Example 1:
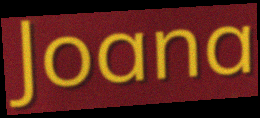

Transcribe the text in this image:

Joana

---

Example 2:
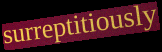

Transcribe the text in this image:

surreptitiously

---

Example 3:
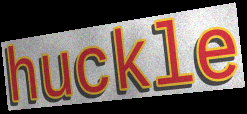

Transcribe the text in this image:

huckle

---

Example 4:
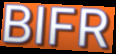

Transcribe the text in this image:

BIFR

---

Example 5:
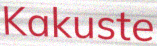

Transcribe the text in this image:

Kakuste